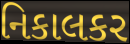
નિકાલકર